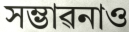
সম্ভাৱনাও